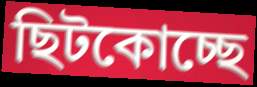
ছিটকোচ্ছে